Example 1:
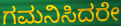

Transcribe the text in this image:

ಗಮನಿಸಿದರೇ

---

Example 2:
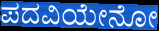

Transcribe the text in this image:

ಪದವಿಯೇನೋ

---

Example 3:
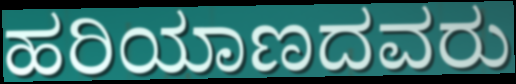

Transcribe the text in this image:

ಹರಿಯಾಣದವರು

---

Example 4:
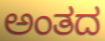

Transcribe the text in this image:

ಅಂತದ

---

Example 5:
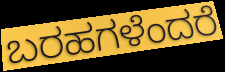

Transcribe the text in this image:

ಬರಹಗಳೆಂದರೆ